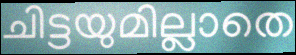
ചിട്ടയുമില്ലാതെ